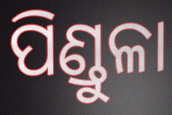
ପିଣ୍ଡୁଳା